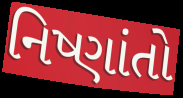
નિષ્ણાંતો